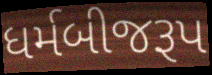
ધર્મબીજરૂપ